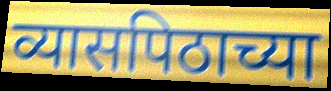
व्यासपिठाच्या